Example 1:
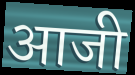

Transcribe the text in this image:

आजी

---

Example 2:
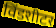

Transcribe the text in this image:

विंडशीटर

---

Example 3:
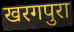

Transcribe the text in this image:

खरगपुरा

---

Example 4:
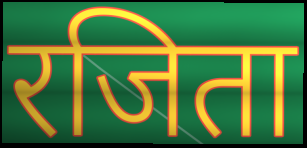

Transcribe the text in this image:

रजिता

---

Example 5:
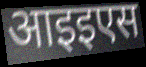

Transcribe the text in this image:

आइइएस